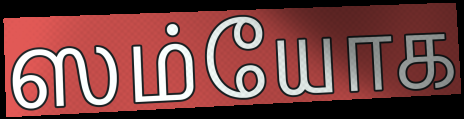
ஸம்யோக